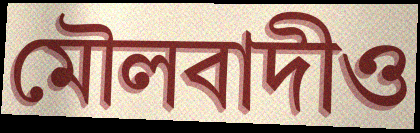
মৌলবাদীও